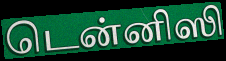
டென்னிஸி